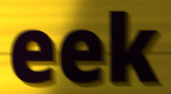
eek